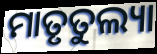
ମାତୃତୁଲ୍ୟା